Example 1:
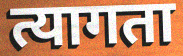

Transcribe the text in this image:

त्यागता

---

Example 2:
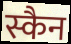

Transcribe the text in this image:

स्‍कैन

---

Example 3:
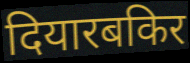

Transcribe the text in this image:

दियारबकिर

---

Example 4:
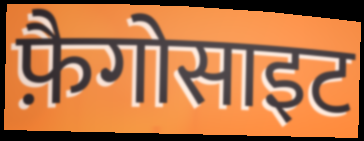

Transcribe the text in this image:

फ़ैगोसाइट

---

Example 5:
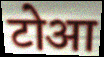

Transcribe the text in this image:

टोआ